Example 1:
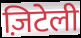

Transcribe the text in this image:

ज़िटेली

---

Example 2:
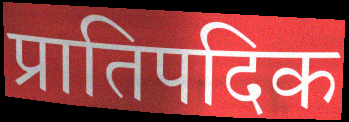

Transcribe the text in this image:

प्रातिपदिक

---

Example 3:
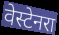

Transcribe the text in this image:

वेस्टेनरा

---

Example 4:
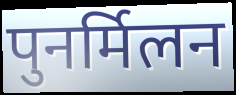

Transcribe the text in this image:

पुनर्मिलन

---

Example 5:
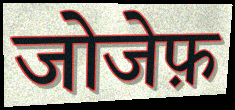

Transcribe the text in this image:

जोजेफ़